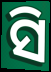
ସି